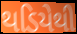
થડિયેથી